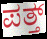
ಪತ್ತ್